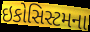
ઇકોસિસ્ટમના